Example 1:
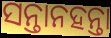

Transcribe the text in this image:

ସନ୍ତାନହନ୍ତା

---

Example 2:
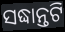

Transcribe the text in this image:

ସଦ୍ଧାନ୍ତଟି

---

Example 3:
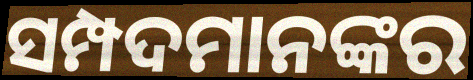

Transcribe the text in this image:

ସମ୍ପଦମାନଙ୍କର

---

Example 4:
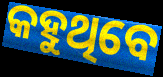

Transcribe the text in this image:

କହୁଥିବେ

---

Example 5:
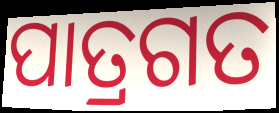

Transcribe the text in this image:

ପାତ୍ରଗତ